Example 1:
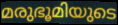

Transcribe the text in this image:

മരുഭൂമിയുടെ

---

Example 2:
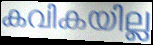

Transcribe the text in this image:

കവികയില്ല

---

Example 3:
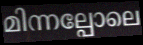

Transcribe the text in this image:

മിന്നല്പോലെ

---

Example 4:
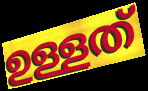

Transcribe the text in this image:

ഉള്ളത്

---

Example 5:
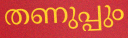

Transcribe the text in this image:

തണുപ്പും